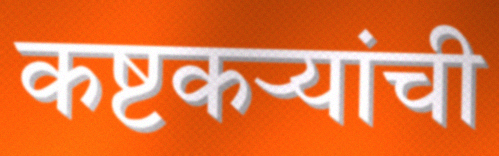
कष्टकऱ्यांची